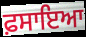
ਫ਼ਸਾਇਆ